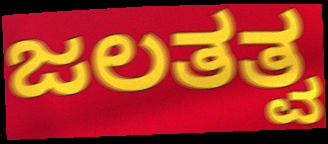
ಜಲತತ್ವ